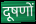
दूषणों